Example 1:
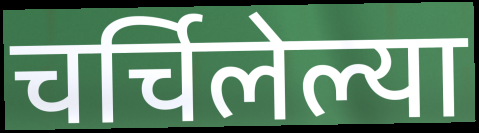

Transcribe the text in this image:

चर्चिलेल्या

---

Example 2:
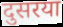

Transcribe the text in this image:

दुसरया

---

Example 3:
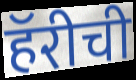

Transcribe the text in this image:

हॅरीची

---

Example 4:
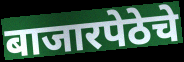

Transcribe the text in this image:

बाजारपेठेचे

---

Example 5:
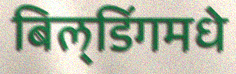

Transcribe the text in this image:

बिल्डिंगमधे